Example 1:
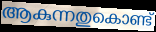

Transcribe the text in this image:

ആകുന്നതുകൊണ്ട്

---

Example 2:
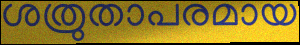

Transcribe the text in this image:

ശത്രുതാപരമായ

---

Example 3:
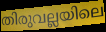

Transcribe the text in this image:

തിരുവല്ലയിലെ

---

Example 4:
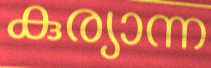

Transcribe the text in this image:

കുര്യാന്ന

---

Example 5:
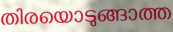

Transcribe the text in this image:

തിരയൊടുങ്ങാത്ത